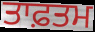
ਤਾਫ਼ਤਮ